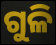
ଗୁଳି